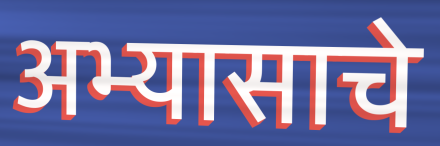
अभ्यासाचे